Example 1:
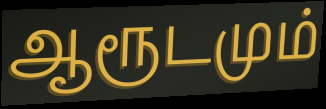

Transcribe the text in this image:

ஆரூடமும்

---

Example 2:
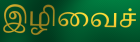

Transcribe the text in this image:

இழிவைச்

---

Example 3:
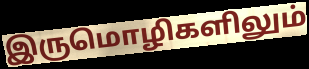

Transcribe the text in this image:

இருமொழிகளிலும்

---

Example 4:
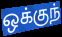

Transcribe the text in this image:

ஒக்குந்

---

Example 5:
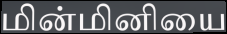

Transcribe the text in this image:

மின்மினியை